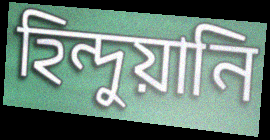
হিন্দুয়ানি